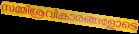
സമ്മിശ്രവികാരങ്ങളോടെ